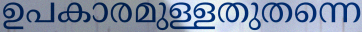
ഉപകാരമുള്ളതുതന്നെ